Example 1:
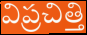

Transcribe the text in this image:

విప్రచిత్తి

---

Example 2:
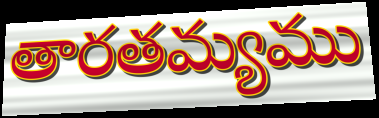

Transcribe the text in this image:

తారతమ్యము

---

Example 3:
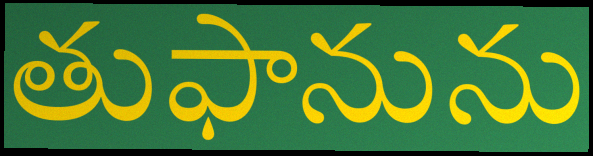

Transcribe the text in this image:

తుఫానును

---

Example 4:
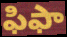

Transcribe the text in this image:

ఫిఫా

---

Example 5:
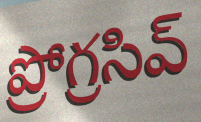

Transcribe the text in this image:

ప్రోగ్రసివ్